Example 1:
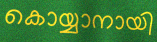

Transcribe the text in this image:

കൊയ്യാനായി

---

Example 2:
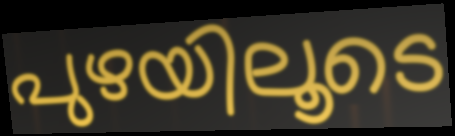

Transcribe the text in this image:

പുഴയിലൂടെ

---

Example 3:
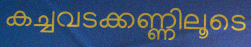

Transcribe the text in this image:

കച്ചവടക്കണ്ണിലൂടെ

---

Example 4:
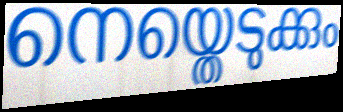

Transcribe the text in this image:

നെയ്തെടുക്കും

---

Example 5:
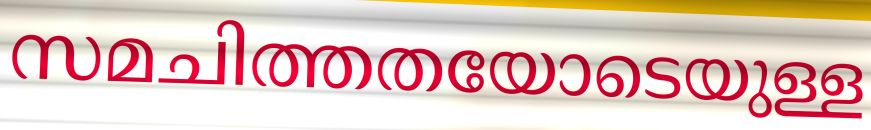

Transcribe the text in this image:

സമചിത്തതയോടെയുള്ള